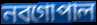
নবগোপাল